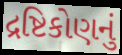
દ્રષ્ટિકોણનું